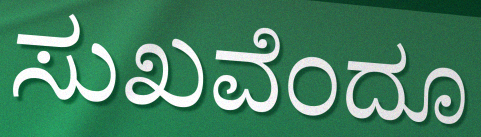
ಸುಖವೆಂದೂ